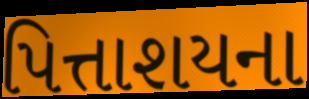
પિત્તાશયના